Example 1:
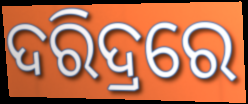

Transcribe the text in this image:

ଦରିଦ୍ରରେ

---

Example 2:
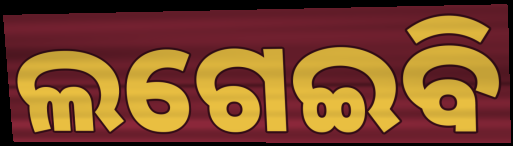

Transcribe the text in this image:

ଲଗେଇବି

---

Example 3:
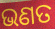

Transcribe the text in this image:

ଭଣତ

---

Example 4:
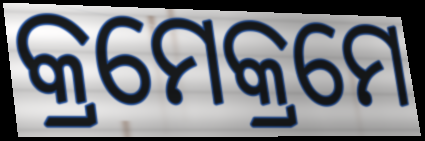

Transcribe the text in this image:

କ୍ରମେକ୍ରମେ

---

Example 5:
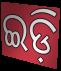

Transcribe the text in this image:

ଇଡ଼ି